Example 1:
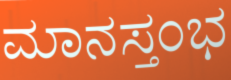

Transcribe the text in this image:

ಮಾನಸ್ತಂಭ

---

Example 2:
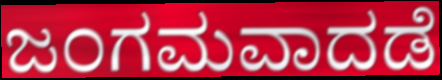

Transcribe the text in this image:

ಜಂಗಮವಾದಡೆ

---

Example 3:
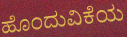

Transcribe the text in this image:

ಹೊಂದುವಿಕೆಯ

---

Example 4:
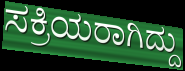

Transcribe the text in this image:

ಸಕ್ರಿಯರಾಗಿದ್ದು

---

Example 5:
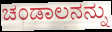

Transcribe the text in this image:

ಚಂಡಾಲನನ್ನು